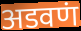
अडवणं